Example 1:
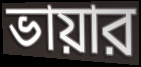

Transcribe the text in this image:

ভায়ার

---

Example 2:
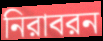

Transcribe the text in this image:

নিরাবরন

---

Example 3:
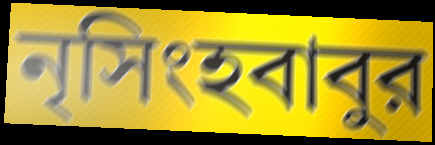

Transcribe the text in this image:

নৃসিংহবাবুর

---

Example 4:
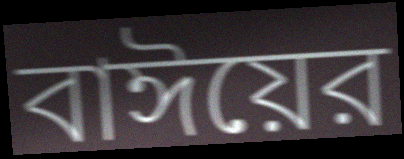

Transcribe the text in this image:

বাঈয়ের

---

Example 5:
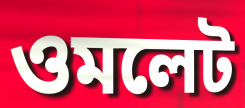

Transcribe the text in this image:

ওমলেট